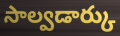
సాల్వడార్కు